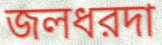
জলধরদা